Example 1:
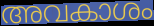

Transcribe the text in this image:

അവകാശം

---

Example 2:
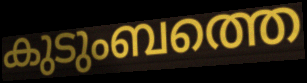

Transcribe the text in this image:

കുടുംബത്തെ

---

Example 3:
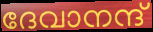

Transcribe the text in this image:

ദേവാനന്ദ്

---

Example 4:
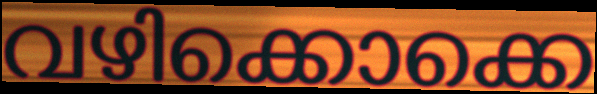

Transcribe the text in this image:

വഴിക്കൊക്കെ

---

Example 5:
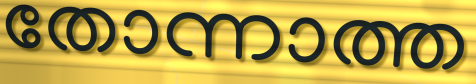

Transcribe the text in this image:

തോന്നാത്ത